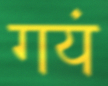
गयं